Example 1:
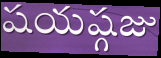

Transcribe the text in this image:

షయష్గజు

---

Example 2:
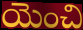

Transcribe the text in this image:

యెంచి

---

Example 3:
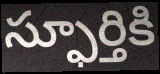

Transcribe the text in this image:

స్ఫూర్తికి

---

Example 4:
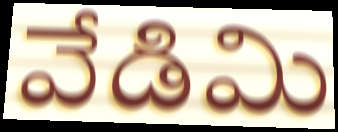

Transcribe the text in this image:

వేడిమి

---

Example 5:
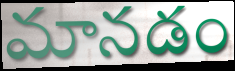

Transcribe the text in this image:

మానడం